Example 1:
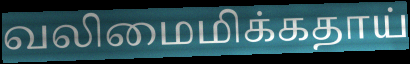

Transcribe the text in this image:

வலிமைமிக்கதாய்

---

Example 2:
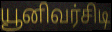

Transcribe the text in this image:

யூனிவர்சிடி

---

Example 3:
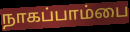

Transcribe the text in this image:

நாகப்பாம்பை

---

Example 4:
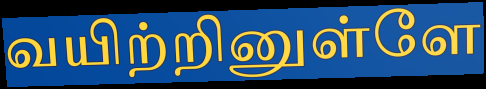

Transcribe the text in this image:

வயிற்றினுள்ளே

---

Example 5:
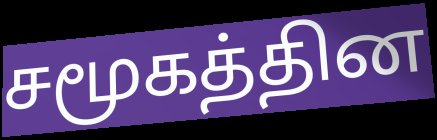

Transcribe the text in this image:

சமூகத்தின